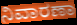
ನಿವಾರಣಾ